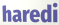
haredi